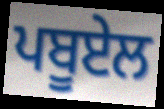
ਪਬੂਏਲ